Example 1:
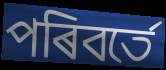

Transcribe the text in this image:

পৰিবৰ্তে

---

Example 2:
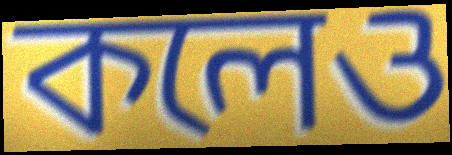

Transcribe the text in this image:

কলেও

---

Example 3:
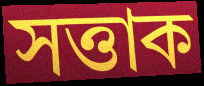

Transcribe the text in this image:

সত্তাক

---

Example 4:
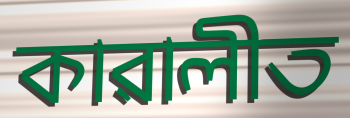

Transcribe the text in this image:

কাৱালীত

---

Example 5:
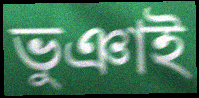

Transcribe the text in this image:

ভুঞাই